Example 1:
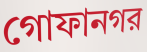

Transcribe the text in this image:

গোফানগর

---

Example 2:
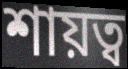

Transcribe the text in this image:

শায়ত্ব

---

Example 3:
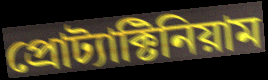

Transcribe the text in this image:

প্রোট্যাক্টিনিয়াম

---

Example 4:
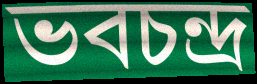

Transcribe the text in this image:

ভবচন্দ্র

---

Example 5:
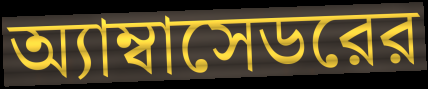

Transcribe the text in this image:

অ্যাম্বাসেডরের